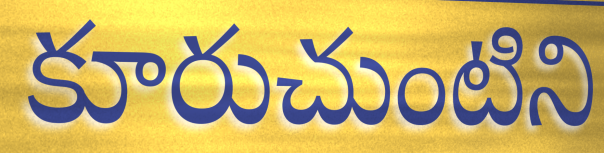
కూరుచుంటిని